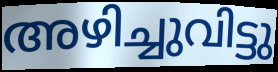
അഴിച്ചുവിട്ടു